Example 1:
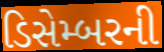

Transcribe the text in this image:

ડિસેમ્બરની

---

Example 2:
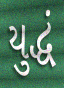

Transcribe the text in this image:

યુદ્ધં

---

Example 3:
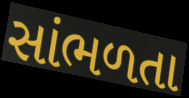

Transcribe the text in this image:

સાંભળતા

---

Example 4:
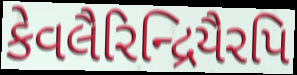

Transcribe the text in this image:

કેવલૈરિન્દ્રિયૈરપિ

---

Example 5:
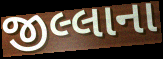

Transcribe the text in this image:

જીલ્લાના